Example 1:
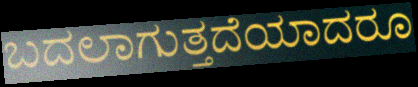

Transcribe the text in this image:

ಬದಲಾಗುತ್ತದೆಯಾದರೂ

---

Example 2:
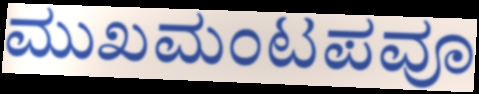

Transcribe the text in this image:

ಮುಖಮಂಟಪವೂ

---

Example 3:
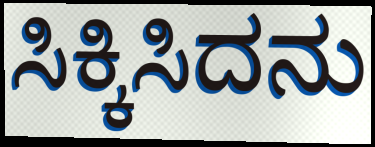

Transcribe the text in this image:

ಸಿಕ್ಕಿಸಿದನು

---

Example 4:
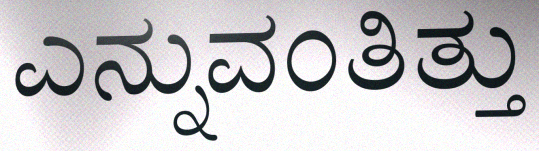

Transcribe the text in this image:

ಎನ್ನುವಂತಿತ್ತು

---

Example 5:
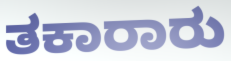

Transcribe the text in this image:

ತಕಾರಾರು